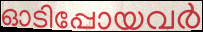
ഓടിപ്പോയവർ